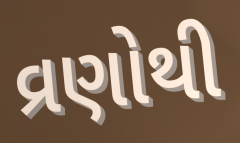
વ્રણોથી